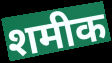
शमीक